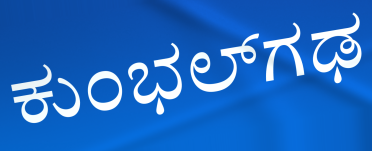
ಕುಂಭಲ್‌ಗಢ